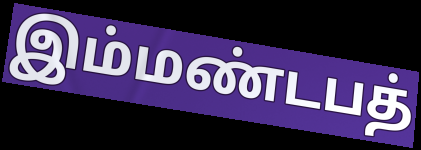
இம்மண்டபத்